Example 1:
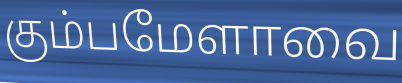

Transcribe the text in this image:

கும்பமேளாவை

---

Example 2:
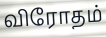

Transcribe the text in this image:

விரோதம்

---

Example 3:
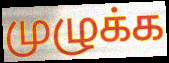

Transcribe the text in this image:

முழுக்க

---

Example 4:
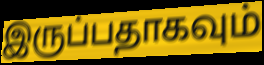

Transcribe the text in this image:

இருப்பதாகவும்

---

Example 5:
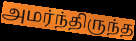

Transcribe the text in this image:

அமர்ந்திருந்த